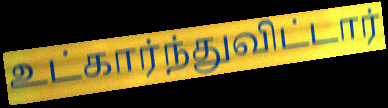
உட்கார்ந்துவிட்டார்